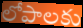
లోపాలకు